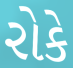
રોકે